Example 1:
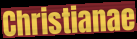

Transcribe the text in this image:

Christianae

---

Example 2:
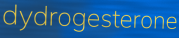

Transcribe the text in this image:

dydrogesterone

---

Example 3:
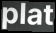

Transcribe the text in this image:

plat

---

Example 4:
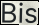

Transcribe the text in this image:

Bis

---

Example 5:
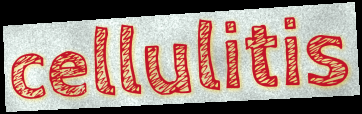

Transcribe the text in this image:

cellulitis